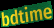
bdtime